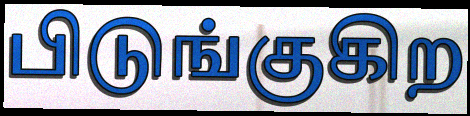
பிடுங்குகிற